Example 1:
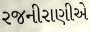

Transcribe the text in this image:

રજનીરાણીએ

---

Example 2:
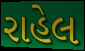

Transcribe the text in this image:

રાહેલ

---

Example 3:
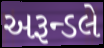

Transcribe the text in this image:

અરૂન્ડલે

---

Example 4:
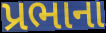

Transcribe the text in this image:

પ્રભાના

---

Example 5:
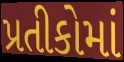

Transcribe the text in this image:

પ્રતીકોમાં